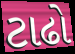
ટાઢો